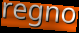
regno